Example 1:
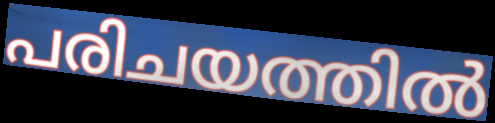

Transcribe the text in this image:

പരിചയത്തിൽ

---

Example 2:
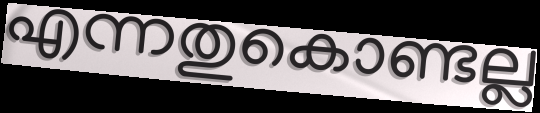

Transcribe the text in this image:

എന്നതുകൊണ്ടല്ല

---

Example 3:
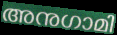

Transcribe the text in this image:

അനുഗാമി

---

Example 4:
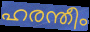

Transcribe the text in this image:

ഹരന്തീം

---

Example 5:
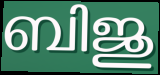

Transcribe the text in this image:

ബിജു